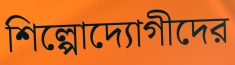
শিল্পোদ্যোগীদের